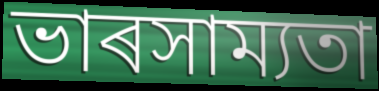
ভাৰসাম্যতা